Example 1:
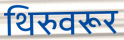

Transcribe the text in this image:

थिरुवरूर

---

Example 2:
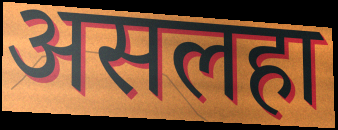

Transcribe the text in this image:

असलहा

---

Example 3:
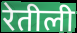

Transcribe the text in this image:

रेतीली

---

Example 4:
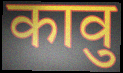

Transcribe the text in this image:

कावु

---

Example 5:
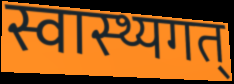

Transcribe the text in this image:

स्वास्थ्यगत्